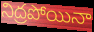
నిద్రపోయినా